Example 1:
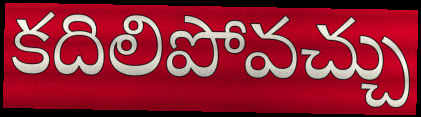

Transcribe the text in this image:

కదిలిపోవచ్చు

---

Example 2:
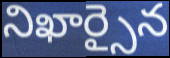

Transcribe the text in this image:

నిఖార్సైన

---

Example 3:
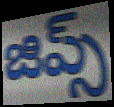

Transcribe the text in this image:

జిప్స్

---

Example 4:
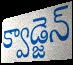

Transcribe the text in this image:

క్వాడ్జెన్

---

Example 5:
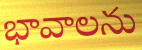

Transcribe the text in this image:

భావాలను